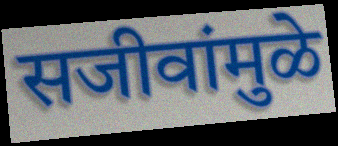
सजीवांमुळे